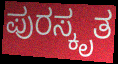
ಪುರಸ್ಕೃತ